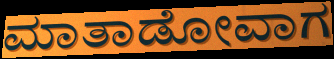
ಮಾತಾಡೋವಾಗ